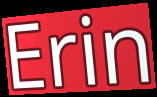
Erin